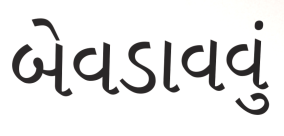
બેવડાવવું